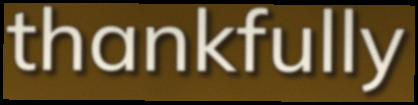
thankfully